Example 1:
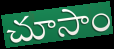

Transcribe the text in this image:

చూసాం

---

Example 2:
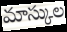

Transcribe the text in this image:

మాస్కుల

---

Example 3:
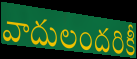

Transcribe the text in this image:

వాదులందరికీ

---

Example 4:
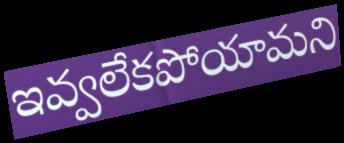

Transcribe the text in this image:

ఇవ్వలేకపోయామని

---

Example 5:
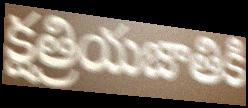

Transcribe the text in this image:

క్షత్రియజాతికి